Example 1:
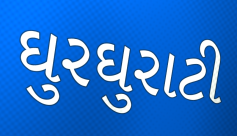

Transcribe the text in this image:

ઘુરઘુરાટી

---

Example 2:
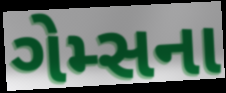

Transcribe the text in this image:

ગેમ્સના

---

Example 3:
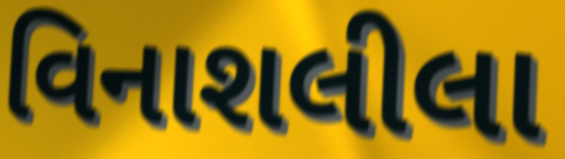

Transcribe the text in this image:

વિનાશલીલા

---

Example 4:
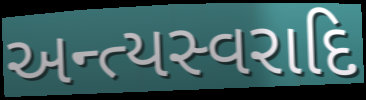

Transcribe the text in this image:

અન્ત્યસ્વરાદિ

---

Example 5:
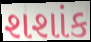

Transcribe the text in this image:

શશાંક